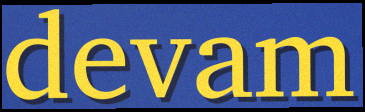
devam